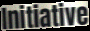
Initiative